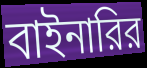
বাইনারির